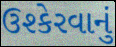
ઉશ્કેરવાનું